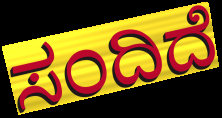
ಸಂದಿದೆ